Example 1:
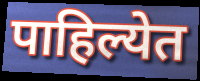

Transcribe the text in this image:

पाहिल्येत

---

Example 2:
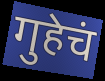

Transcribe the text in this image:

गुहेचं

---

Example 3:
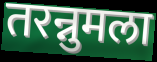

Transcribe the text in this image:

तरन्नुमला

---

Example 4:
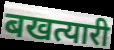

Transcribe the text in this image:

बखत्यारी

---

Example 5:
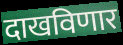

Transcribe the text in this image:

दाखविणार